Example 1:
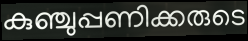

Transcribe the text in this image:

കുഞ്ചുപ്പണിക്കരുടെ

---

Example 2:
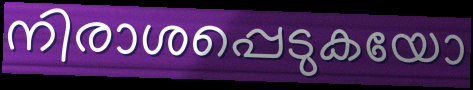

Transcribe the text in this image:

നിരാശപ്പെടുകയോ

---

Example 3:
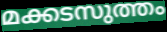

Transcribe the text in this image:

മക്കടസുത്തം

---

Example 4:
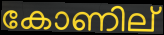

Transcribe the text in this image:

കോണില്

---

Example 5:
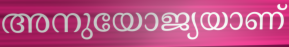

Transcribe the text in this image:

അനുയോജ്യയാണ്